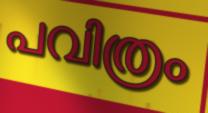
പവിത്രം